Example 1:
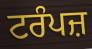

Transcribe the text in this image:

ਟਰੰਪਜ਼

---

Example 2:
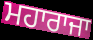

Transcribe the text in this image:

ਮਹਾਰਾਜਾ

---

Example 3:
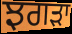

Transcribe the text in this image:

ਝਗੜਾ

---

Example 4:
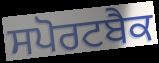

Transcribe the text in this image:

ਸਪੋਰਟਬੈਕ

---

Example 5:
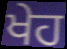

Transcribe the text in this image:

ਖੇਹ